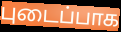
புடைப்பாக